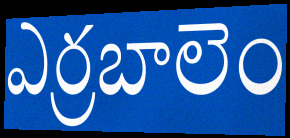
ఎర్రబాలెం